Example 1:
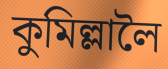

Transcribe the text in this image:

কুমিল্লালৈ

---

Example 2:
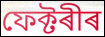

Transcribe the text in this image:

ফেক্টৰীৰ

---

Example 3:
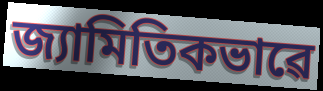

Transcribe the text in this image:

জ্যামিতিকভাৱে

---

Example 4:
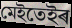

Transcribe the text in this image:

মেইতেইৰ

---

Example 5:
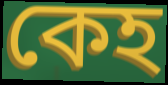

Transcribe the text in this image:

কেহ